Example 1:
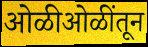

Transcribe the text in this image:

ओळीओळींतून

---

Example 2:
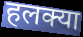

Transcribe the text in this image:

हलक्या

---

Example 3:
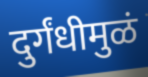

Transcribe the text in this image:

दुर्गंधीमुळं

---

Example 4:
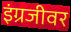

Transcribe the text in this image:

इंग्रजीवर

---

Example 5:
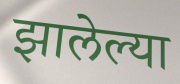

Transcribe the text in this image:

झालेल्या